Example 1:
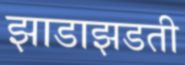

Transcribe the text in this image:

झाडाझडती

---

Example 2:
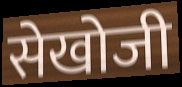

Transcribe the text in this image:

सेखोजी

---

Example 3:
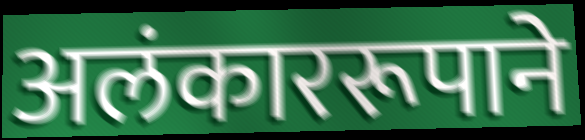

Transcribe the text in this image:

अलंकाररूपाने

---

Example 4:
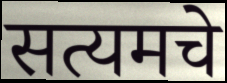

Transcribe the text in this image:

सत्यमचे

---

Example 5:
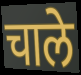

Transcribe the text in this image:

चाले